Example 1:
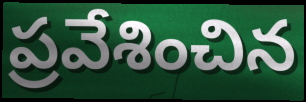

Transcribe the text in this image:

ప్రవేశించిన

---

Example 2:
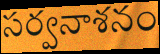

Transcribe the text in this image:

సర్వనాశనం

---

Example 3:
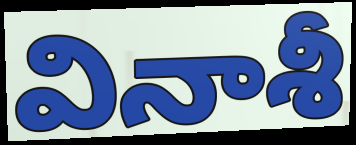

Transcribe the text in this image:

వినాశీ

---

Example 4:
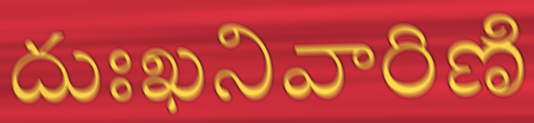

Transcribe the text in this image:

దుఃఖనివారిణి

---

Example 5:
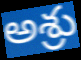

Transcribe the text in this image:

అశ్రు